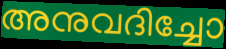
അനുവദിച്ചോ